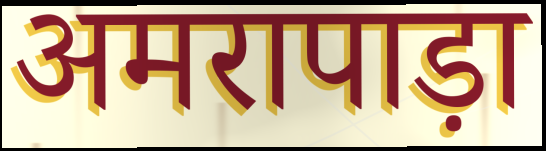
अमरापाड़ा